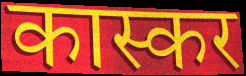
कास्कर